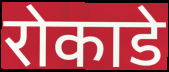
रोकाडे